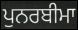
ਪੁਨਰਬੀਮਾ